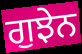
ਗੁਝੇਨ